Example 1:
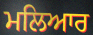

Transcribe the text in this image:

ਮਲਿਆਰ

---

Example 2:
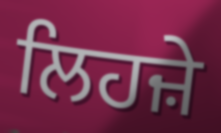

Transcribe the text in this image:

ਲਿਹਜ਼ੇ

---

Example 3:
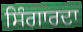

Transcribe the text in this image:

ਸਿੰਗਾਰਦਾ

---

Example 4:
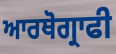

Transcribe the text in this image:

ਆਰਥੋਗ੍ਰਾਫੀ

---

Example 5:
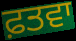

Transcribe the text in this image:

ਫ਼ਤਵਾ